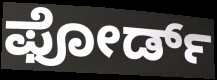
ಫೋರ್ಡ್